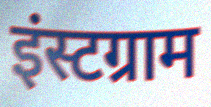
इंस्टग्राम